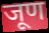
जूण